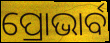
ପ୍ରୋଭାର୍ବ